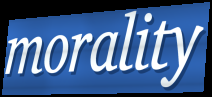
morality